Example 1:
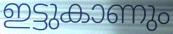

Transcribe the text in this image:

ഇട്ടുകാണും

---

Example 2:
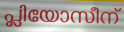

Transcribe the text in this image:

പ്ലിയോസീന്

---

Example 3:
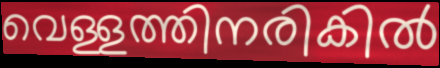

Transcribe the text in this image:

വെള്ളത്തിനരികിൽ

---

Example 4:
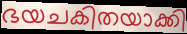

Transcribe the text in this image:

ഭയചകിതയാക്കി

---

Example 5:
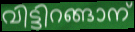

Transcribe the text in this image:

വിട്ടിറങ്ങാന്